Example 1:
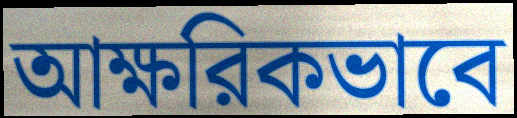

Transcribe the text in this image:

আক্ষরিকভাবে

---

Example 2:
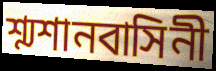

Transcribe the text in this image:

শ্মশানবাসিনী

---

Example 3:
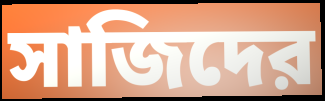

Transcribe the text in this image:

সাজিদের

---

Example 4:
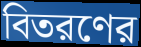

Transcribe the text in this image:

বিতরণের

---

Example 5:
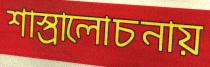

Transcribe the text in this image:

শাস্ত্রালোচনায়